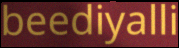
beediyalli